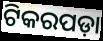
ଟିକରପଡ଼ା